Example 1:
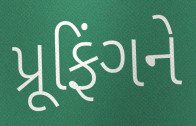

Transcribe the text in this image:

પ્રૂફિંગને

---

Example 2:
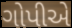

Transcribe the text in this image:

ગોપીએ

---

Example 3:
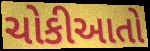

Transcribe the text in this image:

ચોકીઆતો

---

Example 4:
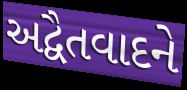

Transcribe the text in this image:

અદ્વૈતવાદને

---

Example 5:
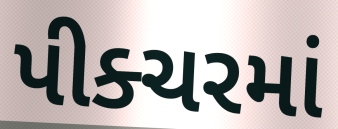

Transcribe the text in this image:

પીક્ચરમાં